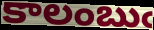
కాలంబుఁ